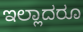
ಇಲ್ಲಾದರೂ